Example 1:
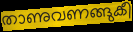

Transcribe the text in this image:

താണുവണങ്ങുകീ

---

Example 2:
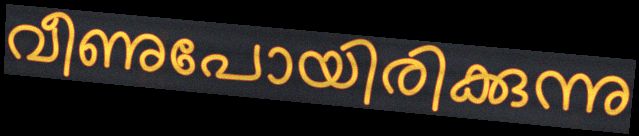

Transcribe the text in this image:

വീണുപോയിരിക്കുന്നു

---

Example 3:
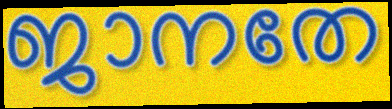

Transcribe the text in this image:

ജാനതേ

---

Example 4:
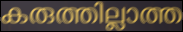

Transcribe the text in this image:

കരുത്തില്ലാത്ത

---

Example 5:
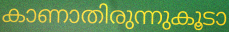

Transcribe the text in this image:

കാണാതിരുന്നുകൂടാ